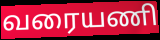
வரையணி